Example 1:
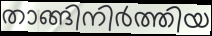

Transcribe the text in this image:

താങ്ങിനിർത്തിയ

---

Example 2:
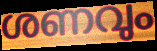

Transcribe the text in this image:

ശണവും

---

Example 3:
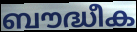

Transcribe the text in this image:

ബൗദ്ധീക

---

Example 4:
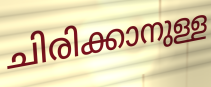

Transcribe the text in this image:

ചിരിക്കാനുള്ള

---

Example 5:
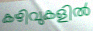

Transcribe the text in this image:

കഴിവുകളിൽ